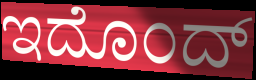
ಇದೊಂದ್